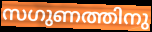
സഗുണത്തിനു